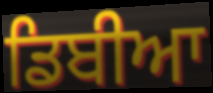
ਡਿਬੀਆ